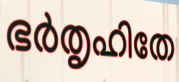
ഭർതൃഹിതേ